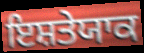
ਇਸ਼ਤੇਯਾਕ